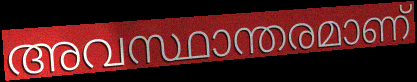
അവസ്ഥാന്തരമാണ്